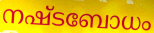
നഷ്ടബോധം